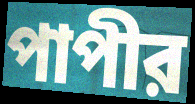
পাপীর